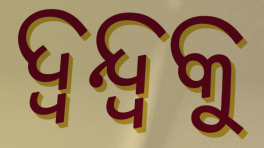
ଦ୍ୱନ୍ଦ୍ୱକୁ